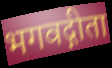
भगवद्गीता